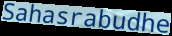
Sahasrabudhe